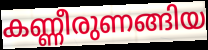
കണ്ണീരുണങ്ങിയ